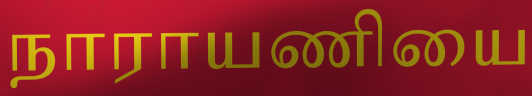
நாராயணியை